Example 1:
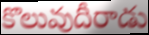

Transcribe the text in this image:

కొలువుదీరాడు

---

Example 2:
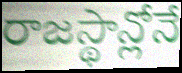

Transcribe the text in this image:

రాజస్థాన్లోనే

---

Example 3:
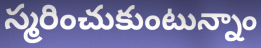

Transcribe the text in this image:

స్మరించుకుంటున్నాం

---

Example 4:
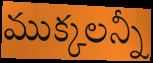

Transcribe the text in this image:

ముక్కలన్నీ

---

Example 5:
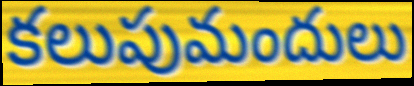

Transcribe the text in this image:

కలుపుమందులు